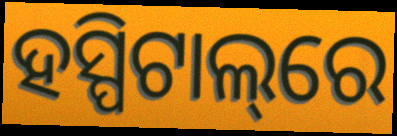
ହସ୍ପିଟାଲ୍‌ରେ